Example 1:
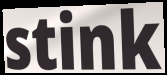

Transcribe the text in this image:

stink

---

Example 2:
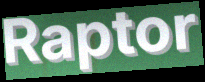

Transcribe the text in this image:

Raptor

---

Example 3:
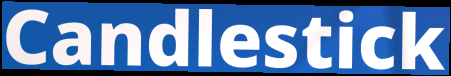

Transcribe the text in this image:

Candlestick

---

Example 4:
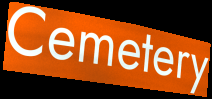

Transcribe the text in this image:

Cemetery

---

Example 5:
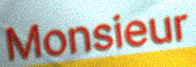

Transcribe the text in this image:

Monsieur